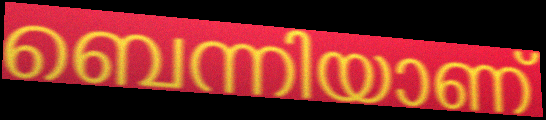
ബെന്നിയാണ്